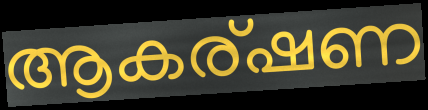
ആകര്ഷണ